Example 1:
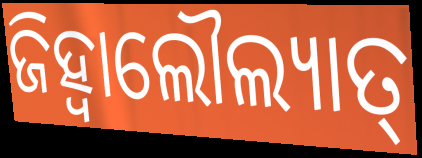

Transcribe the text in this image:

ଜିହ୍ଵାଲୌଲ୍ୟାତ୍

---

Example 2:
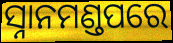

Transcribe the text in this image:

ସ୍ନାନମଣ୍ଡପରେ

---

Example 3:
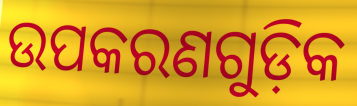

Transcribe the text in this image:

ଉପକରଣଗୁଡ଼ିକ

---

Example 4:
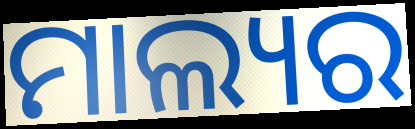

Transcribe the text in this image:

ମାଲ୍ୟର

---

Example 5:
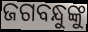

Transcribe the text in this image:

ଜଗବନ୍ଧୁଙ୍କୁ